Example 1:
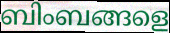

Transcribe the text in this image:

ബിംബങ്ങളെ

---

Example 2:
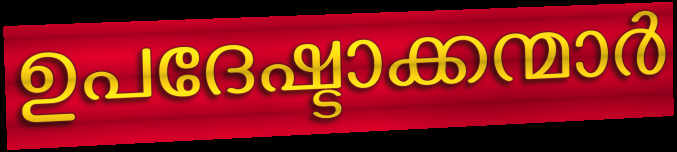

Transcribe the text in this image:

ഉപദേഷ്ടാക്കന്മാർ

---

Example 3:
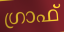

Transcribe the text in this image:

ഗ്രാഫ്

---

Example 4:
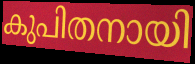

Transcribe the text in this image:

കുപിതനായി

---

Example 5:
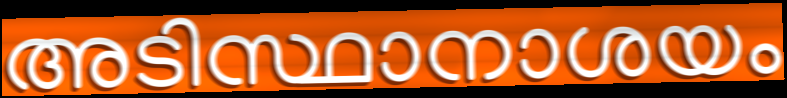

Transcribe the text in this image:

അടിസ്ഥാനാശയം